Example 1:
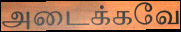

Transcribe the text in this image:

அடைக்கவே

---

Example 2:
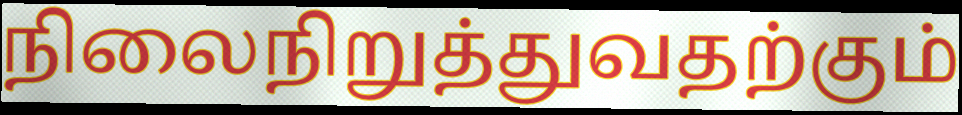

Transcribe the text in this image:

நிலைநிறுத்துவதற்கும்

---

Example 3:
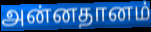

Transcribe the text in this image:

அன்னதானம்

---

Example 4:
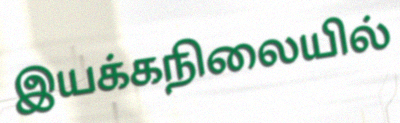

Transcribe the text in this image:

இயக்கநிலையில்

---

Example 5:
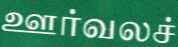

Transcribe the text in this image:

ஊர்வலச்